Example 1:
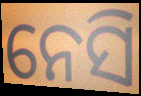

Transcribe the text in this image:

ନେସି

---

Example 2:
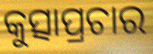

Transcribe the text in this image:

କୁତ୍ସାପ୍ରଚାର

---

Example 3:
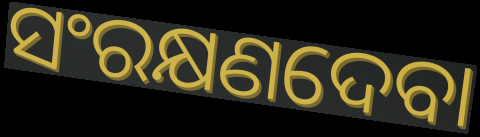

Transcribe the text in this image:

ସଂରକ୍ଷଣଦେବା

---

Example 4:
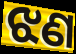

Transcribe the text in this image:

ଝଣ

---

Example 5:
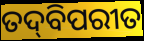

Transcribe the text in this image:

ତଦ୍‍ବିପରୀତ